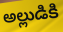
అల్లుడికి